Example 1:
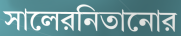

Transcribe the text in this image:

সালেরনিতানোর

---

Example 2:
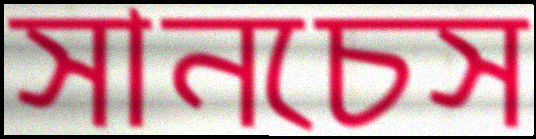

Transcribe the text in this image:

সানচেস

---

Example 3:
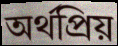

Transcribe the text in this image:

অর্থপ্রিয়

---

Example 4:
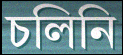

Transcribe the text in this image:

চলিনি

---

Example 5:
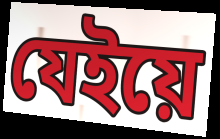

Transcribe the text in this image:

যেইয়ে